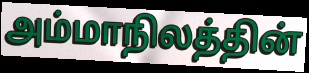
அம்மாநிலத்தின்